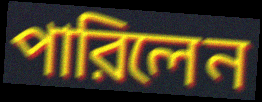
পারিলেন